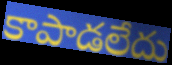
కాపాడలేదు